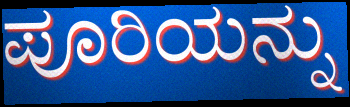
ಪೂರಿಯನ್ನು